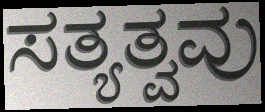
ಸತ್ಯತ್ವವು